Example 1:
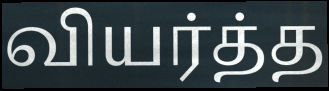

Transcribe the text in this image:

வியர்த்த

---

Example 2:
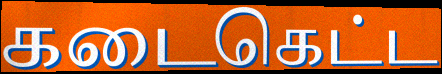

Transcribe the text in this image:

கடைகெட்ட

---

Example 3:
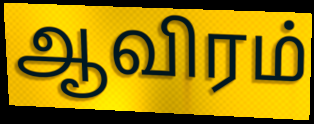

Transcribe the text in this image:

ஆவிரம்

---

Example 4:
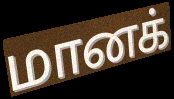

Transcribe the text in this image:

மானக்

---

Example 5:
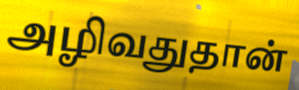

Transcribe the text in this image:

அழிவதுதான்